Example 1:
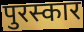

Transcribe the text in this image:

पुरस्कार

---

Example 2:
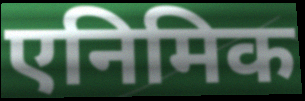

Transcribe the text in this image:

एनिमिक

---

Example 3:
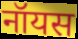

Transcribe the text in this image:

नॉयस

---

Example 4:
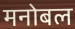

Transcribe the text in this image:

मनोबल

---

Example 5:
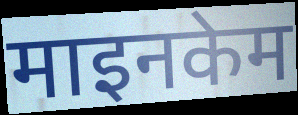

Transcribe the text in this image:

माइनकेम